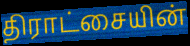
திராட்சையின்